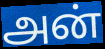
அன்